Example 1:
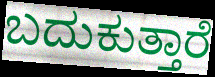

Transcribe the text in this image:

ಬದುಕುತ್ತಾರೆ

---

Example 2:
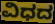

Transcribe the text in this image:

ವಿಧದ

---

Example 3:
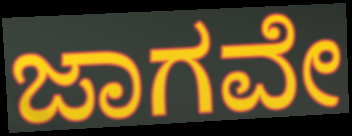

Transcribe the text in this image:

ಜಾಗವೇ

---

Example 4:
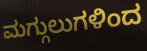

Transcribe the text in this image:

ಮಗ್ಗುಲುಗಳಿಂದ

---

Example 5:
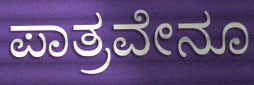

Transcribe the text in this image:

ಪಾತ್ರವೇನೂ